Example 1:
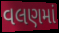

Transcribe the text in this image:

વલણમાં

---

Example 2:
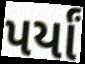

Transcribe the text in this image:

પર્યાં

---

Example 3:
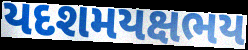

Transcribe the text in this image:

યદશમયક્ષભય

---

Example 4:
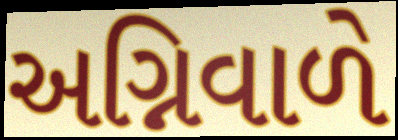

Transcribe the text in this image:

અગ્નિવાળે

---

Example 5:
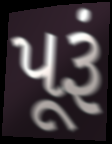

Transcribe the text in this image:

પૂરૂં